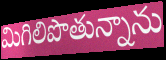
మిగిలిపొతున్నాను